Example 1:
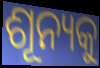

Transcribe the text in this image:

ଶୂନ୍ୟକୁ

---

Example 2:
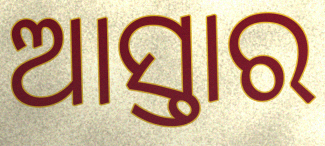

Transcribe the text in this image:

ଆସ୍ତାର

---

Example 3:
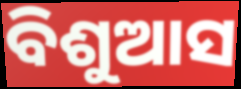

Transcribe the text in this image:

ବିଶୁଆସ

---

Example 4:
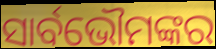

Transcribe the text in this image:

ସାର୍ବଭୌମଙ୍କର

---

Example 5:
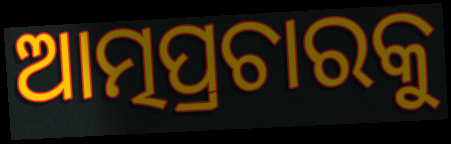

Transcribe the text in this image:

ଆତ୍ମପ୍ରଚାରକୁ